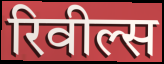
रिवील्स